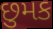
છુમક